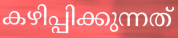
കഴിപ്പിക്കുന്നത്